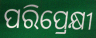
ପରିପ୍ରେକ୍ଷୀ